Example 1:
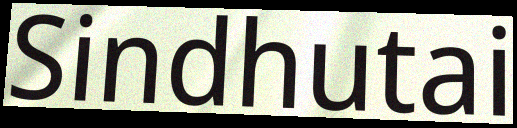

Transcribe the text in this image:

Sindhutai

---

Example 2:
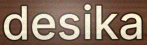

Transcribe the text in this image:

desika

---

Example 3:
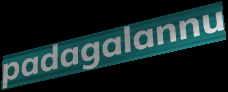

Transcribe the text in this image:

padagalannu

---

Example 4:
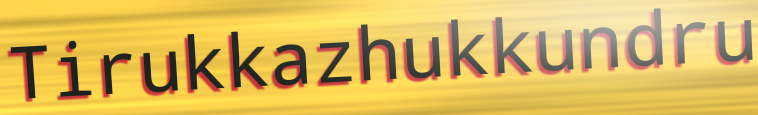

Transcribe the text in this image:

Tirukkazhukkundru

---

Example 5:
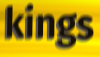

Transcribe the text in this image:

kings